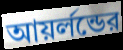
আয়র্লন্ডের